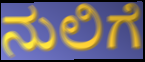
ನುಲಿಗೆ